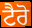
ਟੈਰੋ